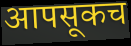
आपसूकच